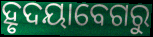
ହୃଦୟାବେଗରୁ